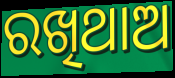
ରଖିଥାଅ